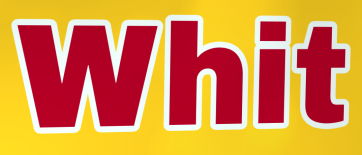
Whit